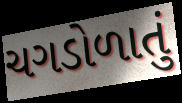
ચગડોળાતું